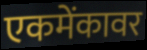
एकमेंकावर